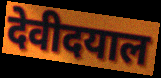
देवीदयाल